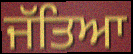
ਜੱਤਿਆ